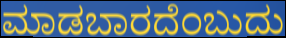
ಮಾಡಬಾರದೆಂಬುದು